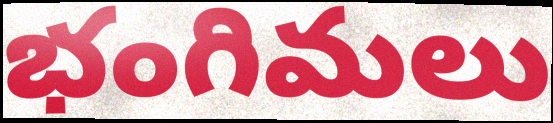
భంగిమలు